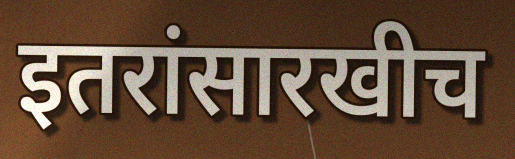
इतरांसारखीच